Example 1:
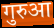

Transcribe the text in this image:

गुरुआ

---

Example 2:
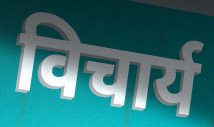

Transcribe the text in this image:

विचार्य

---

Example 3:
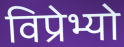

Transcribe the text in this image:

विप्रेभ्यो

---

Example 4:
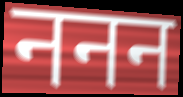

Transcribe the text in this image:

ननन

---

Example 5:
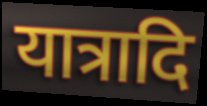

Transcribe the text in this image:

यात्रादि